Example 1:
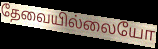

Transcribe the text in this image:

தேவையில்லையோ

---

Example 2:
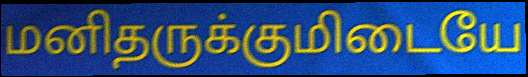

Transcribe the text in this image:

மனிதருக்குமிடையே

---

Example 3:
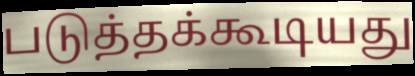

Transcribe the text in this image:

படுத்தக்கூடியது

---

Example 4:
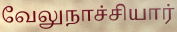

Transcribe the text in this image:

வேலுநாச்சியார்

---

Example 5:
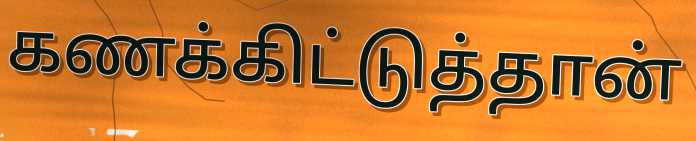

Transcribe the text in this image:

கணக்கிட்டுத்தான்